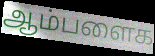
ஆம்பளைக